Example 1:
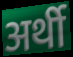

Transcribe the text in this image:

अर्थी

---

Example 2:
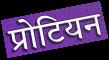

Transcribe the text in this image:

प्रोटियन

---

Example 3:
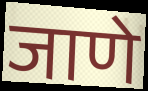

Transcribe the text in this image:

जाणे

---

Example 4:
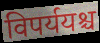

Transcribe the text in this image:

विपर्ययश्च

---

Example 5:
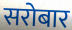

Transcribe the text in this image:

सरोबार